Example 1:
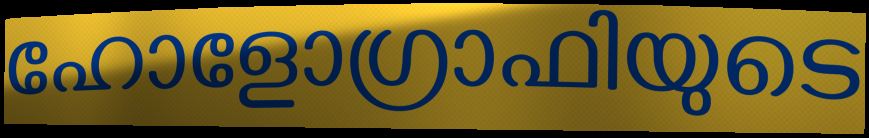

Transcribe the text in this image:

ഹോളോഗ്രാഫിയുടെ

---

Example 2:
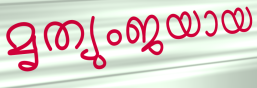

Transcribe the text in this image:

മൃത്യുംജയായ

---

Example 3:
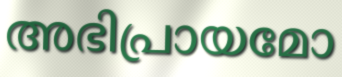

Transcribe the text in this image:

അഭിപ്രായമോ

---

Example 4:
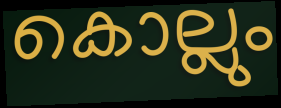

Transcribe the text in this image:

കൊല്ലും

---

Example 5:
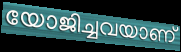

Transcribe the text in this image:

യോജിച്ചവയാണ്